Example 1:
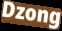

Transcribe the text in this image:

Dzong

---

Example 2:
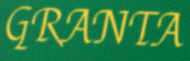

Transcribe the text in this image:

GRANTA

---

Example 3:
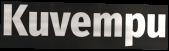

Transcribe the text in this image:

Kuvempu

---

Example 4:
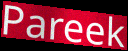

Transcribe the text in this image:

Pareek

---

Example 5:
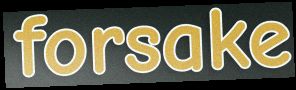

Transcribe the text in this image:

forsake